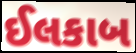
ઈલકાબ